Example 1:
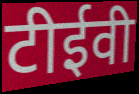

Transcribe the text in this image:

टीईवी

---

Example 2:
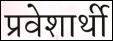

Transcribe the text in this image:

प्रवेशार्थी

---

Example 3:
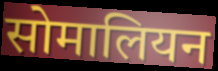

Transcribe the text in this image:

सोमालियन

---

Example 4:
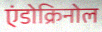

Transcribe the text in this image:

एंडोक्रिनोल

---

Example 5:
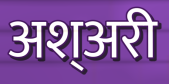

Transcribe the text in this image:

अश्अरी